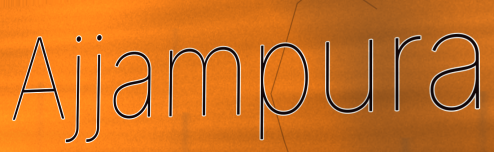
Ajjampura